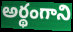
అర్థంగాని